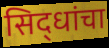
सिद्धांचा